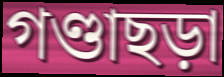
গণ্ডাছড়া